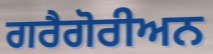
ਗਰੈਗੋਰੀਅਨ